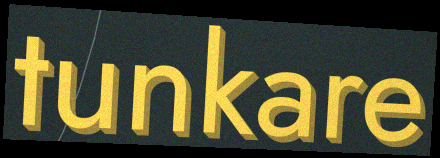
tunkare